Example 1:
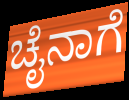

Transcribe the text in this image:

ಚೈನಾಗೆ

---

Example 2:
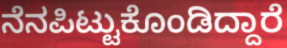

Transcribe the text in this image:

ನೆನಪಿಟ್ಟುಕೊಂಡಿದ್ದಾರೆ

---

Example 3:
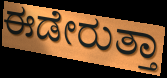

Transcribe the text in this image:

ಈಡೇರುತ್ತಾ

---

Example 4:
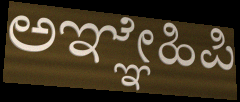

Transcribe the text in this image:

ಅಞ್ಞೇಹಿಪಿ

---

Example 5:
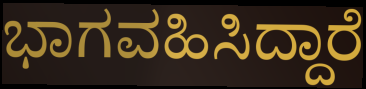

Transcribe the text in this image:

ಭಾಗವಹಿಸಿದ್ದಾರೆ